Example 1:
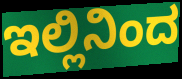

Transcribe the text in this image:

ಇಲ್ಲಿನಿಂದ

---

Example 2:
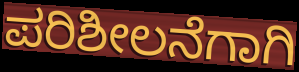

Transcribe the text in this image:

ಪರಿಶೀಲನೆಗಾಗಿ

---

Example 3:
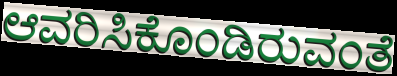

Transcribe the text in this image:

ಆವರಿಸಿಕೊಂಡಿರುವಂತೆ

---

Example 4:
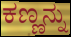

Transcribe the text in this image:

ಕಣ್ಣನ್ನು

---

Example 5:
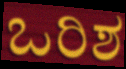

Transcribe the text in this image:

ಒರಿಶ